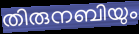
തിരുനബിയും